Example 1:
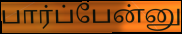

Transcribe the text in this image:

பார்ப்பேன்னு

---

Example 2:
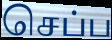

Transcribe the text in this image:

செப்ப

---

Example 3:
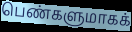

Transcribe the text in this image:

பெண்களுமாகக்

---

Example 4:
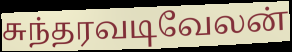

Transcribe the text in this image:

சுந்தரவடிவேலன்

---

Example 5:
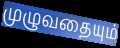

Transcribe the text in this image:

முழுவதையும்